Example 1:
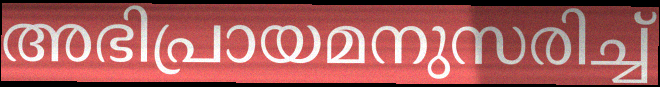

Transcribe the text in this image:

അഭിപ്രായമനുസരിച്ച്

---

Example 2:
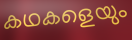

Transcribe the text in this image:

കഥകളെയും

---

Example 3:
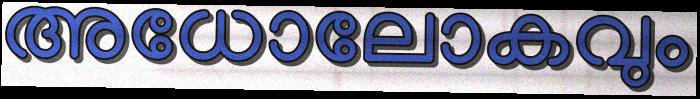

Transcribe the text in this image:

അധോലോകവും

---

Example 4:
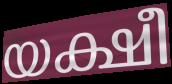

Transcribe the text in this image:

യക്ഷീ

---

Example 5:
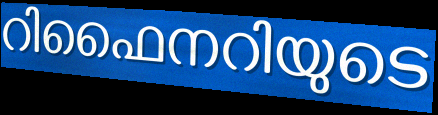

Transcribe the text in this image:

റിഫൈനറിയുടെ